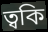
ত্বকি